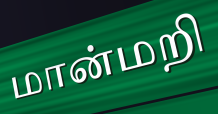
மான்மறி